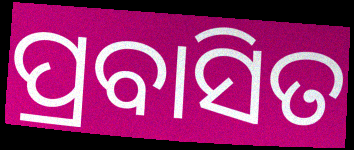
ପ୍ରବାସିତ